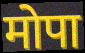
मोपा